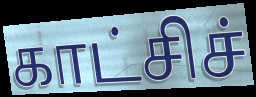
காட்சிச்